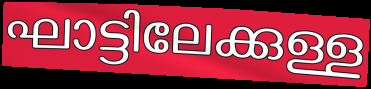
ഘാട്ടിലേക്കുള്ള